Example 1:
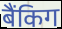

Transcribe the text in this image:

बैंकिग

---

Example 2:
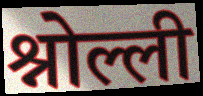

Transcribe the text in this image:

श्नोल्ली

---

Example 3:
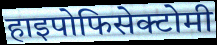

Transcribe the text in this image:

हाइपोफिसेक्टोमी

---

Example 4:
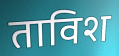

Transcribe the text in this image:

ताविश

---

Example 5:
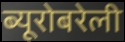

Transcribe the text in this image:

ब्यूरोबरेली